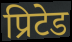
प्रिटेड